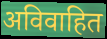
अविवाहित